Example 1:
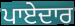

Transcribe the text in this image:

ਪਾਏਦਾਰ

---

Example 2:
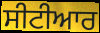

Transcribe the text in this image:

ਸੀਟੀਆਰ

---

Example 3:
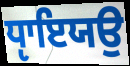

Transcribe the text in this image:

ਧੵਾਇਯਉ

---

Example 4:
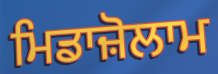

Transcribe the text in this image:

ਮਿਡਾਜ਼ੋਲਾਮ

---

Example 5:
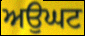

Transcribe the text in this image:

ਅਉਘਟ